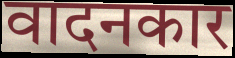
वादनकार